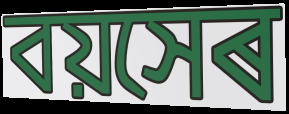
বয়সেৰ